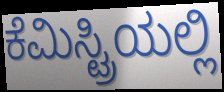
ಕೆಮಿಸ್ಟ್ರಿಯಲ್ಲಿ